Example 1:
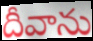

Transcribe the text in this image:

దీవాను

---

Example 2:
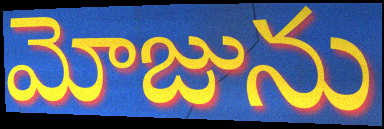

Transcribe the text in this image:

మోజును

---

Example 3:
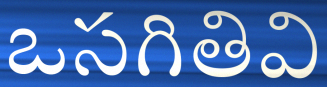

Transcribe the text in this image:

ఒసగితివి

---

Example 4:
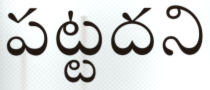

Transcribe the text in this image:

పట్టదని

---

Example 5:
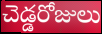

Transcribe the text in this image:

చెడ్డరోజులు